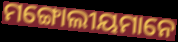
ମଙ୍ଗୋଲୀୟମାନେ